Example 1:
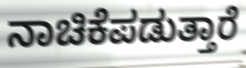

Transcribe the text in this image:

ನಾಚಿಕೆಪಡುತ್ತಾರೆ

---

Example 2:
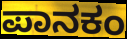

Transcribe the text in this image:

ಪಾನಕಂ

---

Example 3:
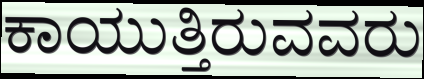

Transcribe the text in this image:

ಕಾಯುತ್ತಿರುವವರು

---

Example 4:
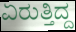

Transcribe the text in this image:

ಏರುತ್ತಿದ್ದ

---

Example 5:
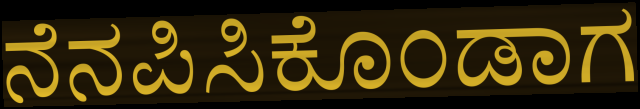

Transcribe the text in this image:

ನೆನಪಿಸಿಕೊಂಡಾಗ